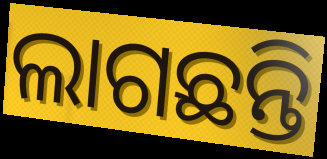
ଲାଗଛନ୍ତି